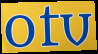
otu